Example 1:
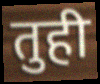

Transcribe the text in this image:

तुही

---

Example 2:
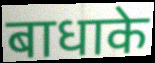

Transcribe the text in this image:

बाधाके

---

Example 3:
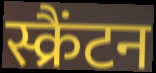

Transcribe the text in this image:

स्क्रैंटन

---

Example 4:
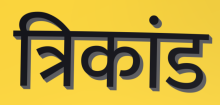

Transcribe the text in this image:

त्रिकांड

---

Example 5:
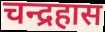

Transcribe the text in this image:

चन्द्रहास